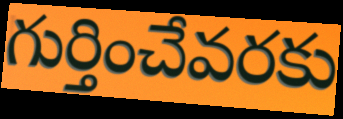
గుర్తించేవరకు